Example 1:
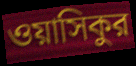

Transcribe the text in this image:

ওয়াসিকুর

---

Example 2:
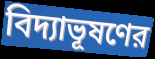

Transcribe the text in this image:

বিদ্যাভূষণের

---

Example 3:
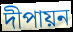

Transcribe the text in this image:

দীপায়ন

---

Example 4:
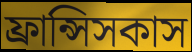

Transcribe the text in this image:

ফ্রান্সিসকাস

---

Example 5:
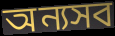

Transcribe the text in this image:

অন্যসব